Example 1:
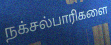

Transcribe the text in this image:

நக்சல்பாரிகளை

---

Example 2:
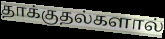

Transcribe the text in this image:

தாக்குதல்களால்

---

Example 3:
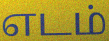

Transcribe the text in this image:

எடம்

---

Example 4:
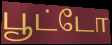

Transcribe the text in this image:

பூட்டோ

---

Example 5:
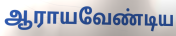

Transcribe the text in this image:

ஆராயவேண்டிய